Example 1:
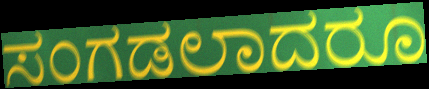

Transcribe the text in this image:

ಸಂಗಡಲಾದರೂ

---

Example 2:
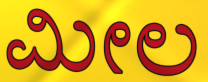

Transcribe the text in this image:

ಮೀಲ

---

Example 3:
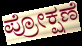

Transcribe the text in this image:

ಪ್ರೋಕ್ಷಣೆ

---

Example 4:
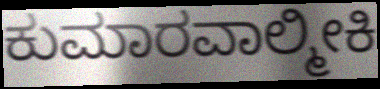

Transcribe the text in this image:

ಕುಮಾರವಾಲ್ಮೀಕಿ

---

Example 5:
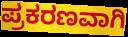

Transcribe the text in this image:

ಪ್ರಕರಣವಾಗಿ